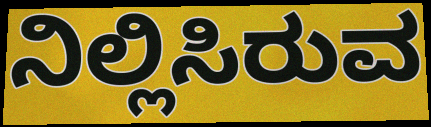
ನಿಲ್ಲಿಸಿರುವ